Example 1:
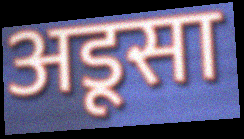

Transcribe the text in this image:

अडूसा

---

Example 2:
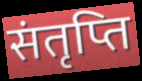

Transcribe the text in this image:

संतृप्ति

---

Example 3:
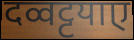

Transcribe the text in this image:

दव्वट्टयाए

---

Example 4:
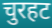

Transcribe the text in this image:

चुरहट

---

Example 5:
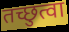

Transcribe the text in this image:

तच्छुत्वा